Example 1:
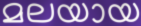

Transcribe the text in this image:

മലയായ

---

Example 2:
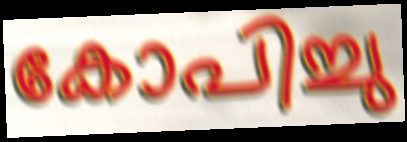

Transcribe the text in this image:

കോപിച്ചു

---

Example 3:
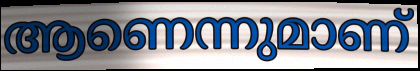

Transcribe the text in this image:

ആണെന്നുമാണ്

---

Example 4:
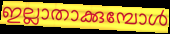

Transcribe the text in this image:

ഇല്ലാതാക്കുമ്പോൾ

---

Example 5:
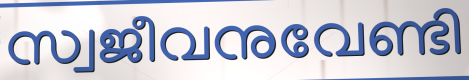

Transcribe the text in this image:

സ്വജീവനുവേണ്ടി